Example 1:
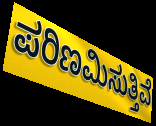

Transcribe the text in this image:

ಪರಿಣಮಿಸುತ್ತಿವೆ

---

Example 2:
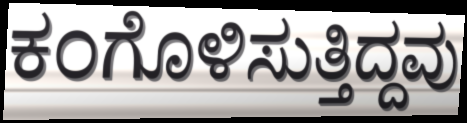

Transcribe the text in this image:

ಕಂಗೊಳಿಸುತ್ತಿದ್ದವು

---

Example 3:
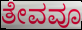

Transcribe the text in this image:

ತೇವವೂ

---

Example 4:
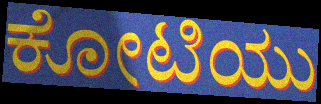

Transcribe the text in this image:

ಕೋಟಿಯು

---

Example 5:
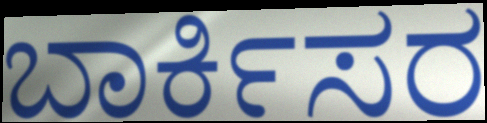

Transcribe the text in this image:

ಬಾರ್ಕಿಸರ